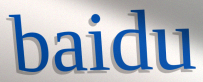
baidu